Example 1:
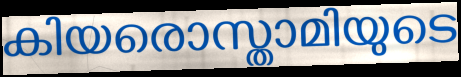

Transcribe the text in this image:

കിയരൊസ്താമിയുടെ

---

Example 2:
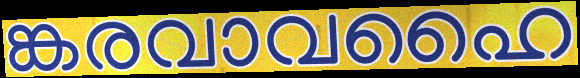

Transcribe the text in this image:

ങ്കരവാവഹൈ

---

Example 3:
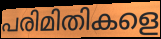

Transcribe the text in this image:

പരിമിതികളെ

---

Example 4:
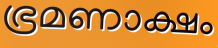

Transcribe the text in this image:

ഭ്രമണാക്ഷം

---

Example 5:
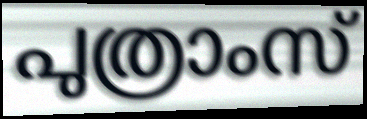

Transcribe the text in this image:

പുത്രാംസ്